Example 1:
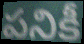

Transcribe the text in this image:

పనికీ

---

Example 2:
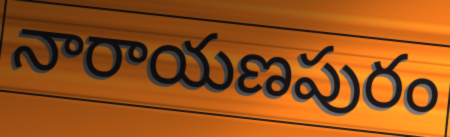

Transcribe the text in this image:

నారాయణపురం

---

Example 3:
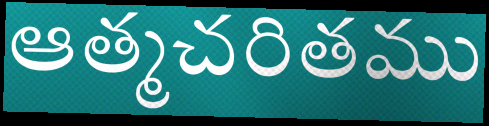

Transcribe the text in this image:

ఆత్మచరితము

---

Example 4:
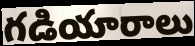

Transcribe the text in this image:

గడియారాలు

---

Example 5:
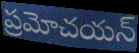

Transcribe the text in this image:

ప్రమోచయన్